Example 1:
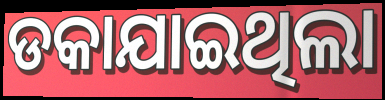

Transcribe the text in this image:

ଡକାଯାଇଥିଲା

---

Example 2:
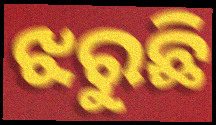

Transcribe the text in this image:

ଝରୁଛି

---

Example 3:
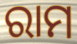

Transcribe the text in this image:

ରାମ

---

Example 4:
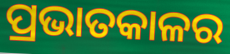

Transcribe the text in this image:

ପ୍ରଭାତକାଳର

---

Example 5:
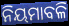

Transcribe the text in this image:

ନିୟମାବଳି